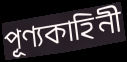
পূণ্যকাহিনী